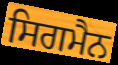
ਸਿਗਮੈਨ